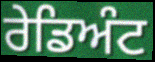
ਰੇਡਿਅੰਟ